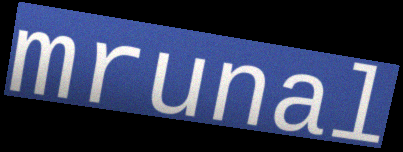
mrunal